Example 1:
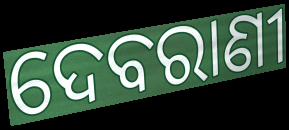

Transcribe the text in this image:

ଦେବରାଣୀ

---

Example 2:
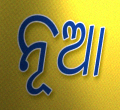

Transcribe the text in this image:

ନୂଆ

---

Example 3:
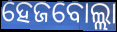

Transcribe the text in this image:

ହେଜବୋଲ୍ଲା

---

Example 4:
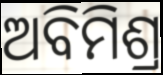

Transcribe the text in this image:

ଅବିମିଶ୍ର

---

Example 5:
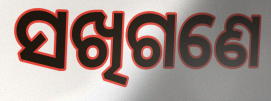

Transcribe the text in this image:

ସଖିଗଣେ